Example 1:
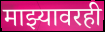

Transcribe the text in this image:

माझ्यावरही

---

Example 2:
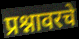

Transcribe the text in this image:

प्रश्नावरचे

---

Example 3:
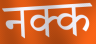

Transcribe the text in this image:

नक्क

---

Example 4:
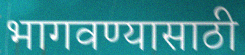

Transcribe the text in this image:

भागवण्यासाठी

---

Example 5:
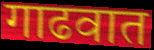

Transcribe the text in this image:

गाढवात